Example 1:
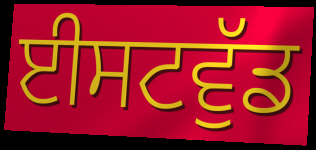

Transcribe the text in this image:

ਈਸਟਵੁੱਡ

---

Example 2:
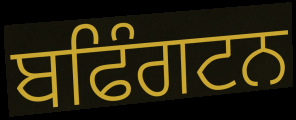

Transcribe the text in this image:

ਬਫਿੰਗਟਨ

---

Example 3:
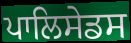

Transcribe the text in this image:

ਪਾਲਿਸੇਡਸ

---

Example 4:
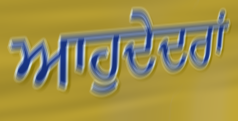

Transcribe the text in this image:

ਆਹੁਦੇਦਰਾਂ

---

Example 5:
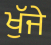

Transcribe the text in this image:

ਖੁੱਜੇ